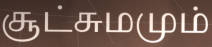
சூட்சுமமும்